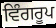
ਵਿੰਗਰੂਪ